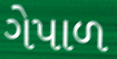
ગેપાળ